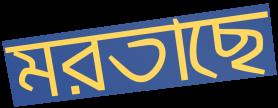
মরতাছে